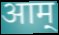
आम्